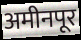
अमीनपूर